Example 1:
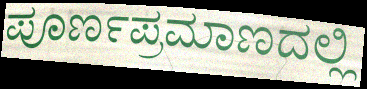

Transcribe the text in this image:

ಪೂರ್ಣಪ್ರಮಾಣದಲ್ಲಿ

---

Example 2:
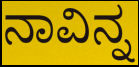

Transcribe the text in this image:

ನಾವಿನ್ನ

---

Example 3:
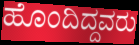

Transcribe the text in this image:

ಹೊಂದಿದ್ದವರು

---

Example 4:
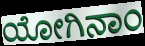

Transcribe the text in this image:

ಯೋಗಿನಾಂ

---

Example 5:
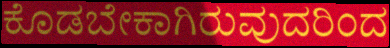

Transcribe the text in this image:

ಕೊಡಬೇಕಾಗಿರುವುದರಿಂದ